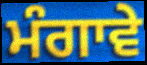
ਮੰਗਾਵੇ